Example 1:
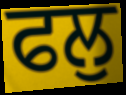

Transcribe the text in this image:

ਫਲੁ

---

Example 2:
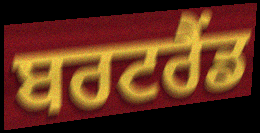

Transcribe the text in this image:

ਬਰਟਰੈਂਡ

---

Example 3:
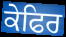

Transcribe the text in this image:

ਕੇਫਿਰ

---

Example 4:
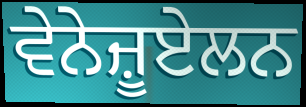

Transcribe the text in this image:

ਵੇਨੇਜ਼ੂਏਲਨ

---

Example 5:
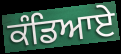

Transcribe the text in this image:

ਕੰਡਿਆਏ